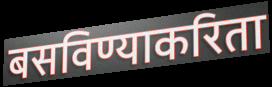
बसविण्याकरिता